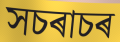
সচৰাচৰ